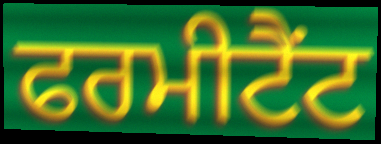
ਫਰਮੀਟੈਂਟ